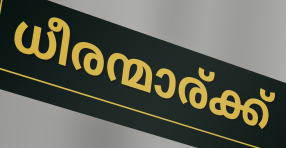
ധീരന്മാര്ക്ക്